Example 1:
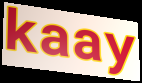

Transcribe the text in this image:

kaay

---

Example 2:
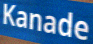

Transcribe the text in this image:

Kanade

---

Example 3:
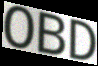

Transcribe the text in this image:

OBD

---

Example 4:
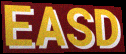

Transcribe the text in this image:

EASD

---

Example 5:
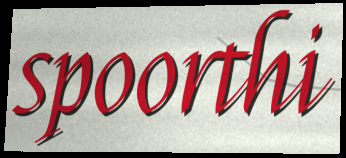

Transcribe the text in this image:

spoorthi